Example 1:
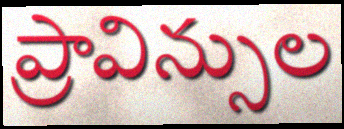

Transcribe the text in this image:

ప్రావిన్సుల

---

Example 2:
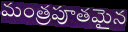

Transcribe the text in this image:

మంత్రపూతమైన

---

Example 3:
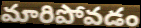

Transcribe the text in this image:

మారిపోవడం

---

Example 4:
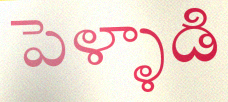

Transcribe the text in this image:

పెళ్ళాడి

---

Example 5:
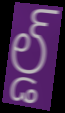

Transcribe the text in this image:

ల్డ్